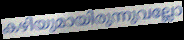
കഴിയുമായിരുന്നുവല്ലോ